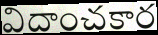
విదాంచకార